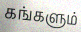
கங்களும்